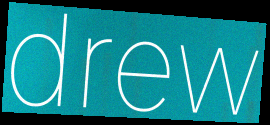
drew